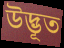
উদ্ভূত